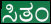
ಸಿತಂ